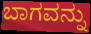
ಬಾಗವನ್ನು